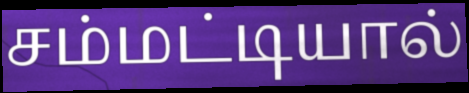
சம்மட்டியால்